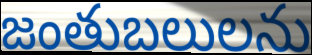
జంతుబలులను